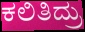
ಕಲಿತಿದ್ರು